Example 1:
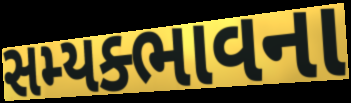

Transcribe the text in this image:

સમ્યક્ભાવના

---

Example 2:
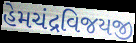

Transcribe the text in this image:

હેમચંદ્રવિજયજી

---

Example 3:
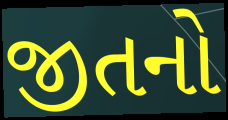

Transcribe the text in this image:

જીતનો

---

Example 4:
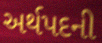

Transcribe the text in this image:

અર્થપદની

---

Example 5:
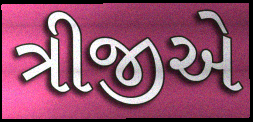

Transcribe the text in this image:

ત્રીજીએ